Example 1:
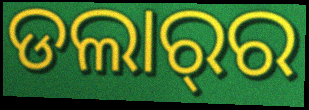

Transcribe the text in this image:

ଡଲାର୍‌ର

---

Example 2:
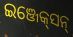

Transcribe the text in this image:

ଇଞ୍ଜେକ୍‍ସନ୍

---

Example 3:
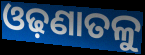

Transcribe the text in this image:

ଓଢ଼ଣାତଳୁ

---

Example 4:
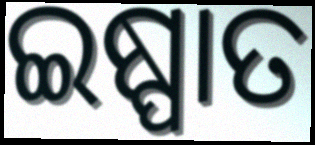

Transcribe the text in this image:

ଇଷ୍ପାତ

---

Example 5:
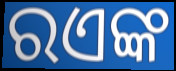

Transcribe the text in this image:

ରଏଙ୍କ